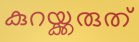
കുറയ്ക്കരുത്